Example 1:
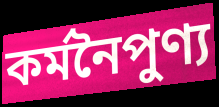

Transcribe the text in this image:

কর্মনৈপুণ্য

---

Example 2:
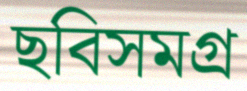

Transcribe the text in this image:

ছবিসমগ্র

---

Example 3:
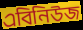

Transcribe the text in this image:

এবিনিউজ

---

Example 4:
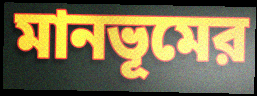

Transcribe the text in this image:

মানভূমের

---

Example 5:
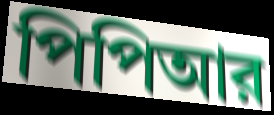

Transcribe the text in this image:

পিপিআর